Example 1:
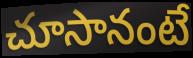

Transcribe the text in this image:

చూసానంటే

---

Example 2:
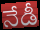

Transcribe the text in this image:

నేడీ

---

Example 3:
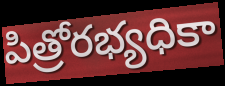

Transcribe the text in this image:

పిత్రోరభ్యధికా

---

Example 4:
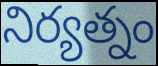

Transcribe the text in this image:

నిర్యత్నం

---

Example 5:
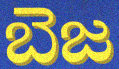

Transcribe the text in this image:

బెజ